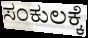
ಸಂಕುಲಕ್ಕೆ